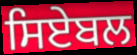
ਸਿਏਬਲ